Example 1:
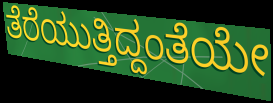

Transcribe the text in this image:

ತೆರೆಯುತ್ತಿದ್ದಂತೆಯೇ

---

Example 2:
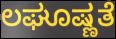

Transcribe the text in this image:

ಲಘೂಷ್ಣತೆ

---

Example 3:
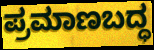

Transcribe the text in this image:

ಪ್ರಮಾಣಬದ್ಧ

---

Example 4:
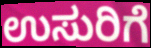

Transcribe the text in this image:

ಉಸುರಿಗೆ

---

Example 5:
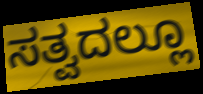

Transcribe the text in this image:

ಸತ್ವದಲ್ಲೂ